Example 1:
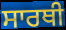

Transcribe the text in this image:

ਸਾਰਥੀ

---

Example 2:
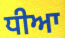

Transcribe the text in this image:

ਧੀਆ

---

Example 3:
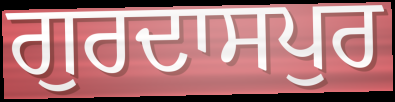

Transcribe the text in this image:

ਗੁਰਦਾਸਪੁਰ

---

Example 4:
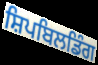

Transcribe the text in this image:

ਸ਼ਿਪਬਿਲਡਿੰਗ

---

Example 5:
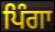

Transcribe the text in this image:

ਪਿੰਗਾ